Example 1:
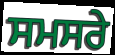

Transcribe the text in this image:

ਸਮਸਰੇ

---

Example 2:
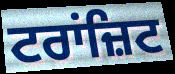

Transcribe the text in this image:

ਟਰਾਂਜ਼ਿਟ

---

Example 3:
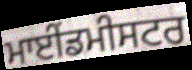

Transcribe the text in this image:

ਮਾਈਂਡਮੀਸਟਰ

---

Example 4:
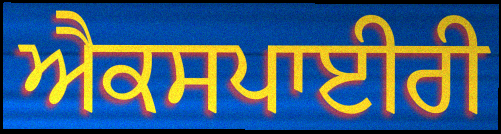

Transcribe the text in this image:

ਐਕਸਪਾਈਰੀ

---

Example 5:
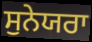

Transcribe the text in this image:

ਸੁਨੇਯਰਾ